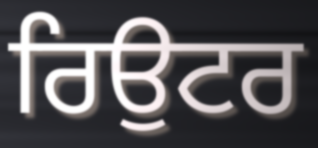
ਰਿਉਟਰ